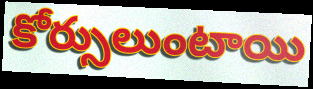
కోర్సులుంటాయి